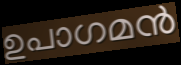
ഉപാഗമൻ